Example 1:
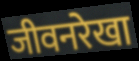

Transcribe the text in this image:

जीवनरेखा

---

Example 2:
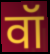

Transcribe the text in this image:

वॉ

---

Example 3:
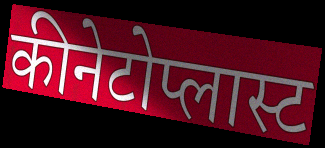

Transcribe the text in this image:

कीनेटोप्लास्ट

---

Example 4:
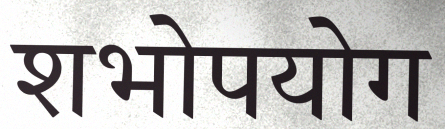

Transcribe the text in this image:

शभोपयोग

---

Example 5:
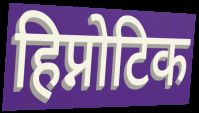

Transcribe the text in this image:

हिप्नोटिक